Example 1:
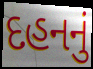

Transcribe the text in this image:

દહનનું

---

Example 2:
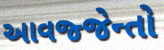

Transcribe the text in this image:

આવજ્જેન્તો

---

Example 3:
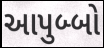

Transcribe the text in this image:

આપુબ્બો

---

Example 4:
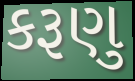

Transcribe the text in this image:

કરૂણુ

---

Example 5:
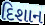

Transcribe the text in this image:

દિશાન